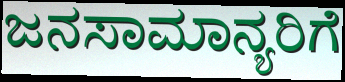
ಜನಸಾಮಾನ್ಯರಿಗೆ